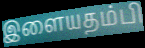
இளையதம்பி